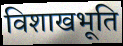
विशाखभूति